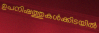
ഉപനിഷത്തുകൾക്കിടയിൽ